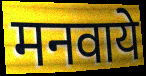
मनवाये